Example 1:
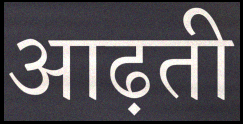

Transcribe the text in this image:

आढ़ती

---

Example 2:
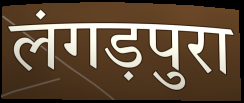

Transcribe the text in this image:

लंगड़पुरा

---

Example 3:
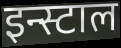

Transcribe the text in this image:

इन्स्टाल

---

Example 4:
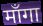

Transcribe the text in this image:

माँगा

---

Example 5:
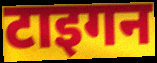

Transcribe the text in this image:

टाइगन